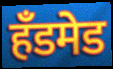
हॅंडमेड